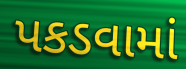
પકડવામાં